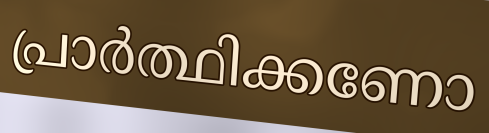
പ്രാർത്ഥിക്കണോ